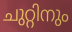
ചുറ്റിനും